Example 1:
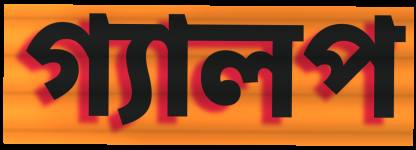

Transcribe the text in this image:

গ্যালপ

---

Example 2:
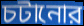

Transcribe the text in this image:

চটানোর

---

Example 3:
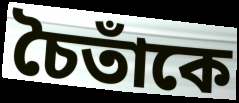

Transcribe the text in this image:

চৈতাঁকে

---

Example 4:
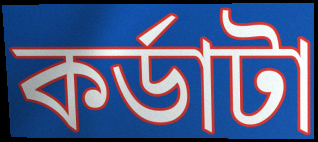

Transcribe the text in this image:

কর্ডাটা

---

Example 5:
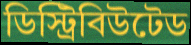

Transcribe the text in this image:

ডিস্ট্রিবিউটেড